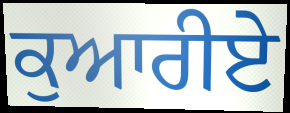
ਕੁਆਰੀਏ